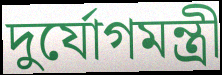
দুর্যোগমন্ত্রী